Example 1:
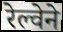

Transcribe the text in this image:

रेल्वेने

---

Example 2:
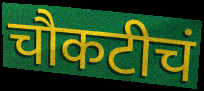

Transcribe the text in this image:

चौकटीचं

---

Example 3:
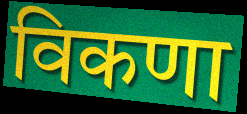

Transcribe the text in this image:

विकणा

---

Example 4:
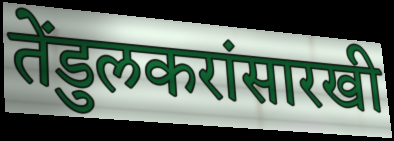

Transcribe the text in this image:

तेंडुलकरांसारखी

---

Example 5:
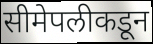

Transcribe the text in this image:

सीमेपलीकडून